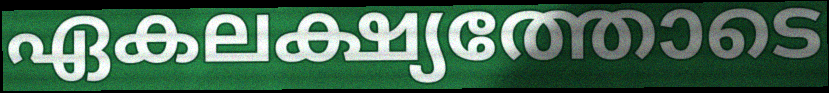
ഏകലക്ഷ്യത്തോടെ